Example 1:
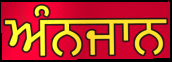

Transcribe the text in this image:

ਅੰਨਜਾਨ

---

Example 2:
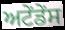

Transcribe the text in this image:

ਅਟੇਂਡੇਂਸ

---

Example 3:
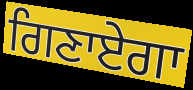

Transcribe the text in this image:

ਗਿਣਾਏਗਾ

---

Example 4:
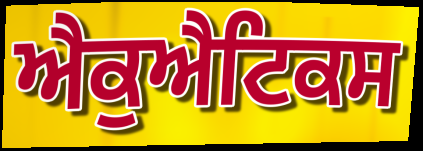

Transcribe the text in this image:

ਐਕੁਐਟਿਕਸ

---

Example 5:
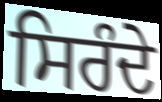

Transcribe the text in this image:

ਸਿਰੰਦੇ